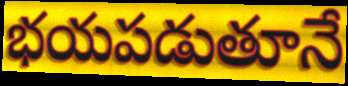
భయపడుతూనే